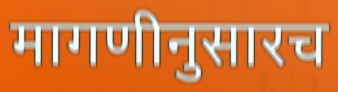
मागणीनुसारच